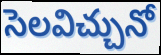
సెలవిచ్చునో